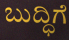
ಬುದ್ಧಿಗೆ